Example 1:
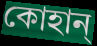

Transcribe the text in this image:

কোহান্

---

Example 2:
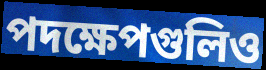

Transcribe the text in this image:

পদক্ষেপগুলিও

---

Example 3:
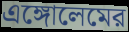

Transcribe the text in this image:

এঙ্গোলেমের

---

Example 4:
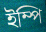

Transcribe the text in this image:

ইম্পি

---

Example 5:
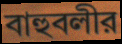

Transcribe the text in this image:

বাহুবলীর